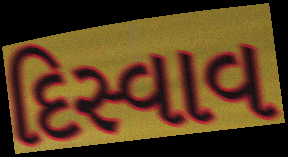
દિસ્વાવ